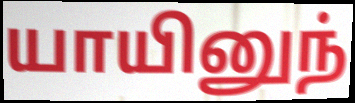
யாயினுந்